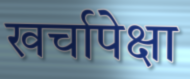
खर्चापेक्षा